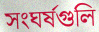
সংঘর্ষগুলি